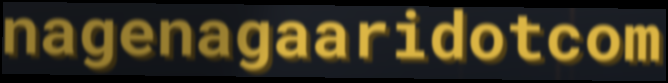
nagenagaaridotcom